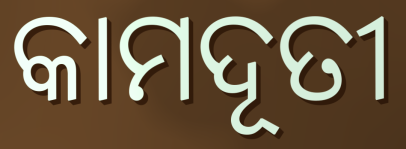
କାମଦୂତୀ